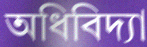
অধিবিদ্যা